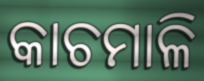
କାଚମାଳି